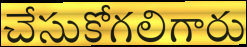
చేసుకోగలిగారు